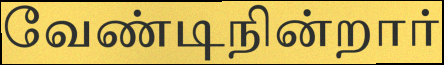
வேண்டிநின்றார்